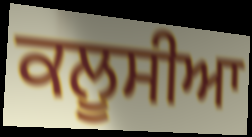
ਕਲੂਸੀਆ